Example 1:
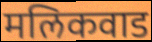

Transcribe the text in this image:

मलिकवाड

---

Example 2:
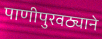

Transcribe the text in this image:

पाणीपुरवठ्याने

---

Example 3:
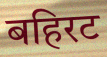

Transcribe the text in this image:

बहिरट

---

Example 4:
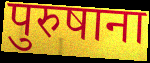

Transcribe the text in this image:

पुरुषाना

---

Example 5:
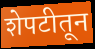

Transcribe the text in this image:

शेपटीतून